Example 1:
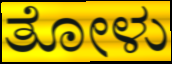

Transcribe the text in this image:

ತೋಳು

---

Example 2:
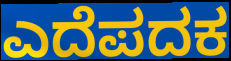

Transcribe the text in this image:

ಎದೆಪದಕ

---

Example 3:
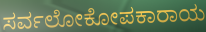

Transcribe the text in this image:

ಸರ್ವಲೋಕೋಪಕಾರಾಯ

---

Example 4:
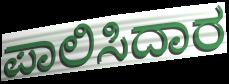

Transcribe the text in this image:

ಪಾಲಿಸಿದಾರ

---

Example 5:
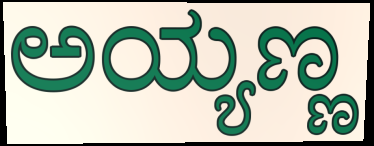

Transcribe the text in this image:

ಅಯ್ಯಣ್ಣ